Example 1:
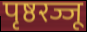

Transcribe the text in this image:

पृष्ठरज्जू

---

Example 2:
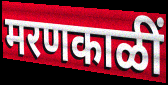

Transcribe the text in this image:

मरणकाळीं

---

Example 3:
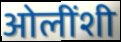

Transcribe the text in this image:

ओलींशी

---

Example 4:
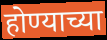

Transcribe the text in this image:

होण्याच्या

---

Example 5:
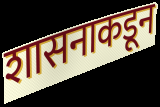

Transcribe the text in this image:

शासनाकडून